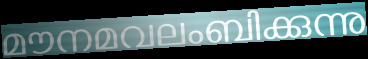
മൗനമവലംബിക്കുന്നു